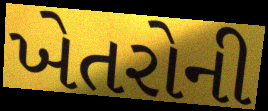
ખેતરોની